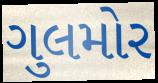
ગુલમોર